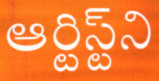
ఆర్టిస్ట్‌ని